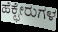
ಹೆಕ್ಟೇರುಗಳ